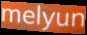
melyun